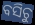
ବସିଚୁ